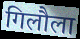
गिलौला